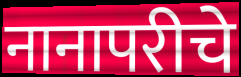
नानापरीचे